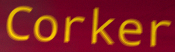
Corker